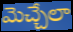
మెచ్చేలా